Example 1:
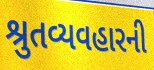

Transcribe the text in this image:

શ્રુતવ્યવહારની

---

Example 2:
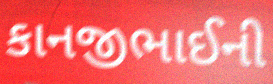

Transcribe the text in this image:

કાનજીભાઈની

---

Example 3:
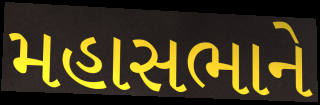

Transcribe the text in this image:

મહાસભાને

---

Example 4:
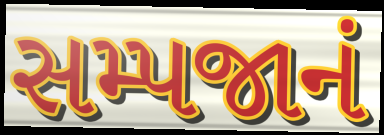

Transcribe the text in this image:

સમ્પજાનં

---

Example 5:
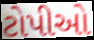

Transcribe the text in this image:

ટોપીઓ